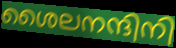
ശൈലനന്ദിനി